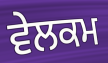
ਵੇਲਕਮ